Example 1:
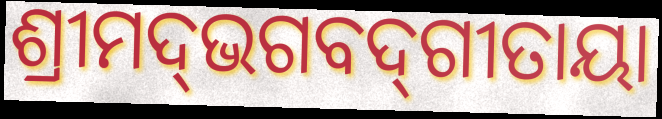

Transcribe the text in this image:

ଶ୍ରୀମଦ୍‌ଭଗବଦ୍‌ଗୀତାୟା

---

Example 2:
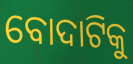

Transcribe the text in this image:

ବୋଦାଟିକୁ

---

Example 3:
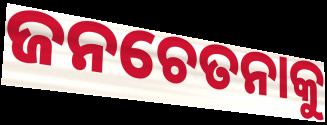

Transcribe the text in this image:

ଜନଚେତନାକୁ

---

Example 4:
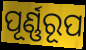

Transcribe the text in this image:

ପୂର୍ଣ୍ଣରୂପ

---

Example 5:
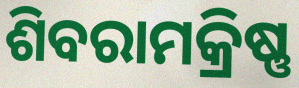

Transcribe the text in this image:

ଶିବରାମକ୍ରିଷ୍ଣ